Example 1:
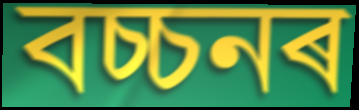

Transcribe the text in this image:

বচ্চনৰ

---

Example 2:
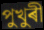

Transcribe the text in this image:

পুখুৰী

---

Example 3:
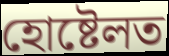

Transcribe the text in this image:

হোষ্টেলত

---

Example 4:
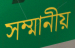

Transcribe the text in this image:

সম্মানীয়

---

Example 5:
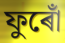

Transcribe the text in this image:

ফুৰোঁ